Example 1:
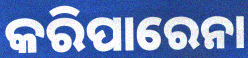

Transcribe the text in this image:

କରିପାରେନା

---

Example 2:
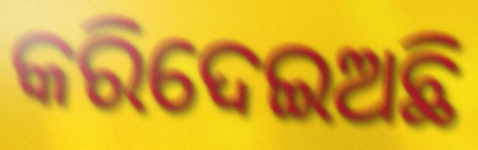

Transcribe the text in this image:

କରିଦେଇଅଛି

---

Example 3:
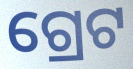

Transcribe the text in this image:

ଗ୍ରେଟ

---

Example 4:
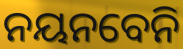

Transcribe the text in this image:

ନୟନବେନି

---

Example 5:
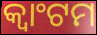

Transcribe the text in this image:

କ୍ୱାଂଟମ